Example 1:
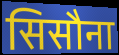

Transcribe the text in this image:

सिसौना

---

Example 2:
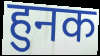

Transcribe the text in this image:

हुनक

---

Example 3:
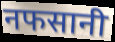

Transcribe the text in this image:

नफसानी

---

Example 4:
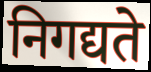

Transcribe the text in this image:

निगद्यते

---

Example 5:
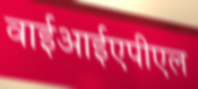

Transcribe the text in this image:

वाईआईएपीएल